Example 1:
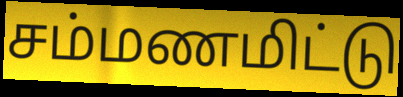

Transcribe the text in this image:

சம்மணமிட்டு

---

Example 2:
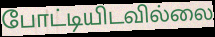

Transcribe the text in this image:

போட்டியிடவில்லை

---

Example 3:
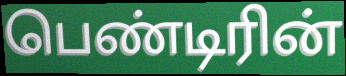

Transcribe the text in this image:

பெண்டிரின்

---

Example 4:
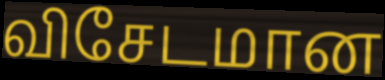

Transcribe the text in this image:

விசேடமான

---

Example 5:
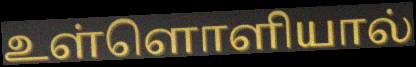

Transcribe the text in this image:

உள்ளொளியால்